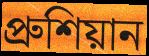
প্রুশিয়ান